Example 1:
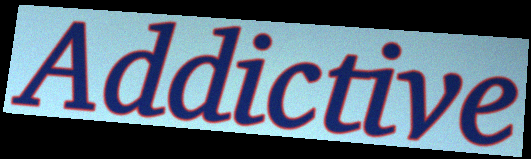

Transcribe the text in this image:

Addictive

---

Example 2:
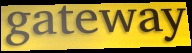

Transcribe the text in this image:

gateway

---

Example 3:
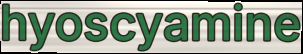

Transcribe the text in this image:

hyoscyamine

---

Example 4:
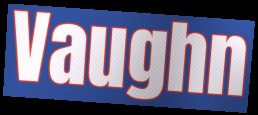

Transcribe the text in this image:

Vaughn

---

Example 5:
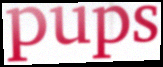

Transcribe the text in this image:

pups